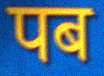
पब